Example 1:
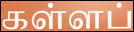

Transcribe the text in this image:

கள்ளப்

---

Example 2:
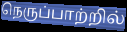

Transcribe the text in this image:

நெருப்பாற்றில்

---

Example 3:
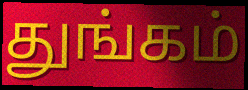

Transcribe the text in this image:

துங்கம்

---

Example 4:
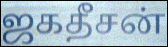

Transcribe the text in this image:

ஜகதீசன்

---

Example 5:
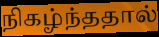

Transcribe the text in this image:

நிகழ்ந்ததால்